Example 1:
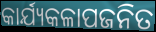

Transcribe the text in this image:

କାର୍ଯ୍ୟକଳାପଜନିତ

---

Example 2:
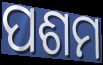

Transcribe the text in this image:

ପଶମ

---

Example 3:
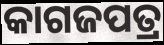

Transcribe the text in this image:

କାଗଜପତ୍ର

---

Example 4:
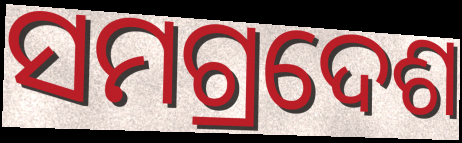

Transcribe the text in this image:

ସମଗ୍ରଦେଶ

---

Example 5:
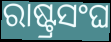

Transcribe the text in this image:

ରାଷ୍ଟ୍ରସଂଘ